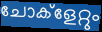
ചോക്ളേറ്റും